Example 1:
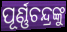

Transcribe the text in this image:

ପୂର୍ଣ୍ଣଚନ୍ଦ୍ରଙ୍କୁ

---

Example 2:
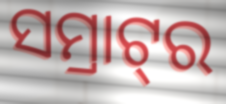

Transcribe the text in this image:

ସମ୍ରାଟ୍‌ର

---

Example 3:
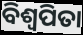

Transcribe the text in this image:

ବିଶ୍ଵପିତା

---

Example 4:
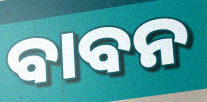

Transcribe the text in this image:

ବାବନ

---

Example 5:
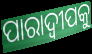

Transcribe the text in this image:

ପାରାଦ୍ୱୀପକୁ